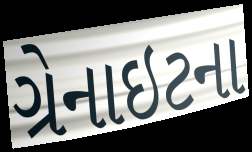
ગ્રેનાઇટના